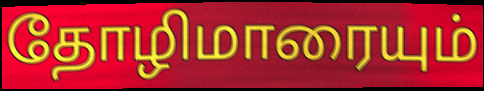
தோழிமாரையும்